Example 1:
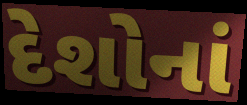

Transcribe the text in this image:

દેશોનાં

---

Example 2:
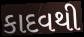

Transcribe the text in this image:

કાદવથી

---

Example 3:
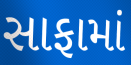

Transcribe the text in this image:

સાફામાં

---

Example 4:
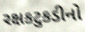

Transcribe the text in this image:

રક્ષકટુકડીનો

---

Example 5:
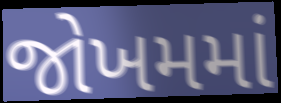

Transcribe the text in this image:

જોખમમાં